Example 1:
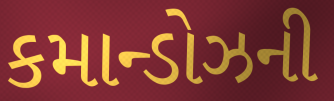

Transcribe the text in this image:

કમાન્ડોઝની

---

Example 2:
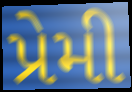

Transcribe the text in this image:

પ્રેમી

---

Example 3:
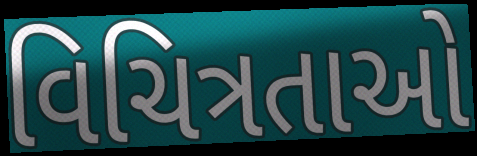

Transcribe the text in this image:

વિચિત્રતાઓ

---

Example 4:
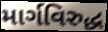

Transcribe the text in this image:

માર્ગવિરુદ્ધ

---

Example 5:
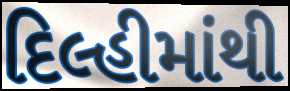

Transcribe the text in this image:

દિલ્હીમાંથી